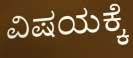
ವಿಷಯಕ್ಕೆ